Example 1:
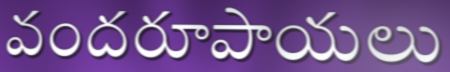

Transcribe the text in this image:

వందరూపాయలు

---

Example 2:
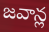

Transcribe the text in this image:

జవాన్ల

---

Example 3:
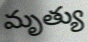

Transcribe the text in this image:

మృత్యు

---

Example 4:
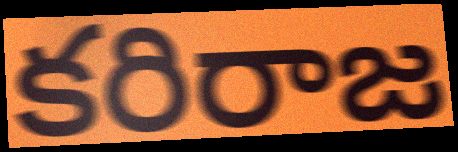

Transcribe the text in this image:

కరిరాజ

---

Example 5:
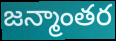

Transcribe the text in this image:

జన్మాంతర